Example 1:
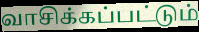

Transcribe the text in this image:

வாசிக்கப்பட்டும்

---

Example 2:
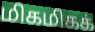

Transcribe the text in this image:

மிகமிகக்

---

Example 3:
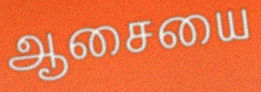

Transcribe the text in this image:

ஆசையை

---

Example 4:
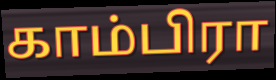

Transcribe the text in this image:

காம்பிரா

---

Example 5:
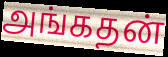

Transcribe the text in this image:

அங்கதன்